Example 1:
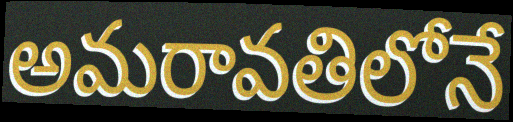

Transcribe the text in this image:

అమరావతిలోనే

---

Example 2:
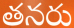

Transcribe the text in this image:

తనరు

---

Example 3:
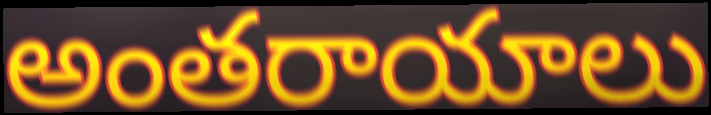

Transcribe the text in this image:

అంతరాయాలు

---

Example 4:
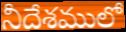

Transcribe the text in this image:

నీదేశములో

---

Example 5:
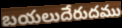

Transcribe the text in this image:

బయలుదేరుదము